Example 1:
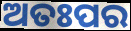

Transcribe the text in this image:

ଅତଃପର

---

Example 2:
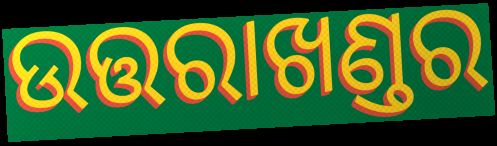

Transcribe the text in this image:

ଉତ୍ତରାଖଣ୍ଡର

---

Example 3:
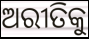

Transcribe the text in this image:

ଅରୀତିକୁ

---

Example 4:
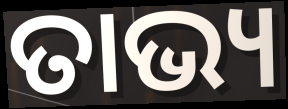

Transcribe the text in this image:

ତାଭ୍ୟ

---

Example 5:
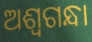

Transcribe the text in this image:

ଅଶ୍ୱଗନ୍ଧା